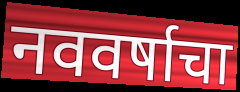
नववर्षाचा